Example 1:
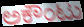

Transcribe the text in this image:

ಅಕೌಂಟು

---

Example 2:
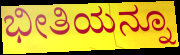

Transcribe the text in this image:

ಭೀತಿಯನ್ನೂ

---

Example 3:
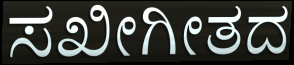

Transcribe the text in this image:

ಸಖೀಗೀತದ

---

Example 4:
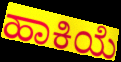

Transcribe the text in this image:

ಹಾಕಿಯೆ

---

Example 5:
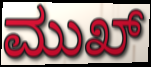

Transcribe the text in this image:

ಮುಖ್